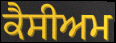
ਕੈਸੀਅਮ